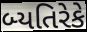
બ્યતિરેકે